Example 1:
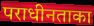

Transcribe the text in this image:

पराधीनताका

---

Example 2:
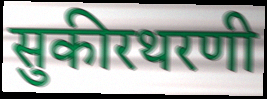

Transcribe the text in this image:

सुकीरथरणी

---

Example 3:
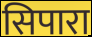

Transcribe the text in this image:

सिपारा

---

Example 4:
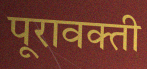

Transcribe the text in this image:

पूरावक्ती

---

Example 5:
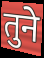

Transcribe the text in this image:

तुने